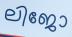
ലിജോ